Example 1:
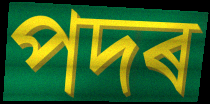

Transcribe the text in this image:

পদৰ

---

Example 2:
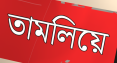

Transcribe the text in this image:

তামলিয়ে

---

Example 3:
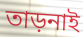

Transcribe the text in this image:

তাড়নাই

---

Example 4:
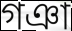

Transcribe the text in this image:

গঞা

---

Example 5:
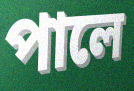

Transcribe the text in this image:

পালে